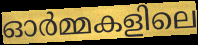
ഓർമ്മകളിലെ